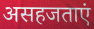
असहजताएं